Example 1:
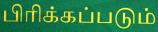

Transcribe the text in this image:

பிரிக்கப்படும்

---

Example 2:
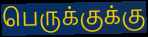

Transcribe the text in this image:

பெருக்குக்கு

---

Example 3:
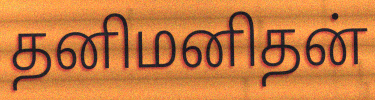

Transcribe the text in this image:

தனிமனிதன்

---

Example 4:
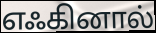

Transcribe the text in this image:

எஃகினால்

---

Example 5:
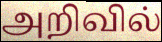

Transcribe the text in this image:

அறிவில்